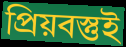
প্রিয়বস্তুই